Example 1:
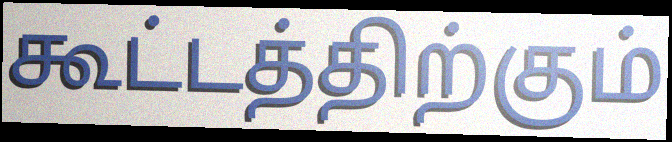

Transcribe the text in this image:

கூட்டத்திற்கும்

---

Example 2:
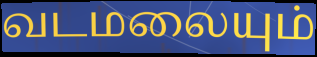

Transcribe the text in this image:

வடமலையும்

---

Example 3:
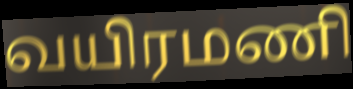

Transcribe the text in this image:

வயிரமணி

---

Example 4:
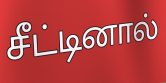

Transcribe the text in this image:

சீட்டினால்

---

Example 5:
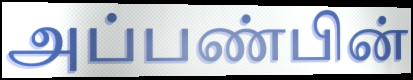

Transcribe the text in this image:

அப்பண்பின்